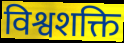
विश्वशक्ति